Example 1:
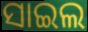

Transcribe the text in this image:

ସାଇଲ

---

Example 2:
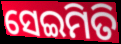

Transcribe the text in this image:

ସେଇମିତି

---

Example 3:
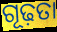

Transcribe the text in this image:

ଗୂଢ଼ତା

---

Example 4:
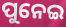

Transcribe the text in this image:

ପୁନେଇ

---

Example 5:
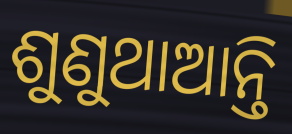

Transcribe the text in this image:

ଶୁଣୁଥାଆନ୍ତି